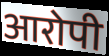
आरोपी